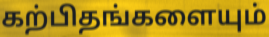
கற்பிதங்களையும்